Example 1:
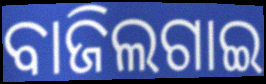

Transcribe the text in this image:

ବାଜିଲଗାଇ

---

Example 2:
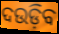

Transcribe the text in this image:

ଦଉଡ଼ିବ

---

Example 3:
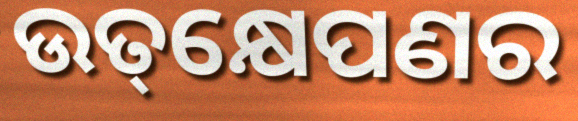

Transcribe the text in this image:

ଉତ୍‌କ୍ଷେପଣର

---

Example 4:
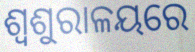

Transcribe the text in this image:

ଶ୍ଵଶୁରାଳୟରେ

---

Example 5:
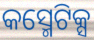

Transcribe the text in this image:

କସ୍ମେଟିକ୍ସ